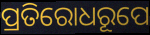
ପ୍ରତିରୋଧରୂପେ